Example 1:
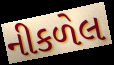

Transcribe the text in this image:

નીકળેલ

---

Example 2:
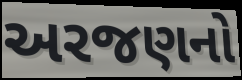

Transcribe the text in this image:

અરજણનો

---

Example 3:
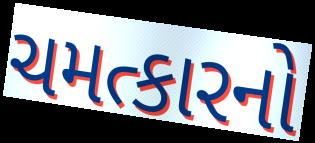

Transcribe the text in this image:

ચમત્કારનો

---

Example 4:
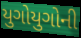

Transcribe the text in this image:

યુગોયુગોની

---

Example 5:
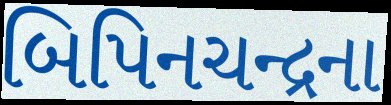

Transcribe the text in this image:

બિપિનચન્દ્રના